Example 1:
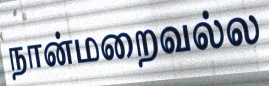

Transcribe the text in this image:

நான்மறைவல்ல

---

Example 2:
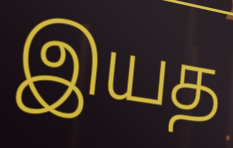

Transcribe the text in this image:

இயத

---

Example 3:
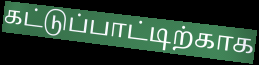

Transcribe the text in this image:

கட்டுப்பாட்டிற்காக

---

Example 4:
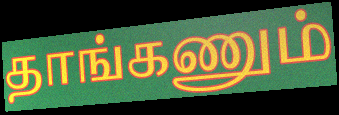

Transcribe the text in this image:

தாங்கணும்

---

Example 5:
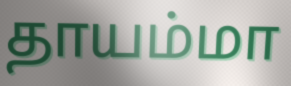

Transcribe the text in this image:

தாயம்மா